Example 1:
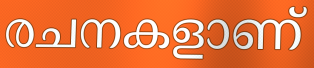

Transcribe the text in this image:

രചനകളാണ്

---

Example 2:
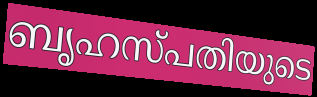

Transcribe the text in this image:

ബൃഹസ്പതിയുടെ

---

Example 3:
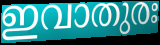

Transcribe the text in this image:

ഇവാതുരഃ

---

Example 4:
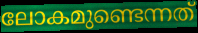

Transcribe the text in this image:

ലോകമുണ്ടെന്നത്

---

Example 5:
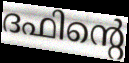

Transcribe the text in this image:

ദഫിന്റെ